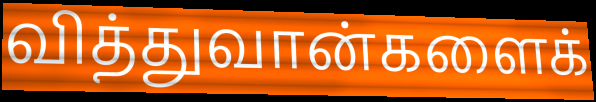
வித்துவான்களைக்